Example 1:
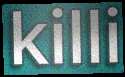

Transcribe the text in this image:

killi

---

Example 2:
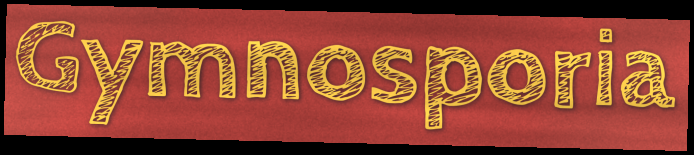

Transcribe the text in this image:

Gymnosporia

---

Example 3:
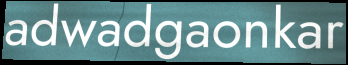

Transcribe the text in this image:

adwadgaonkar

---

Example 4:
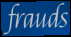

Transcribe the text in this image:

frauds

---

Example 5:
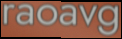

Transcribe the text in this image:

raoavg